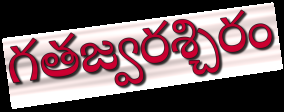
గతజ్వరశ్చిరం